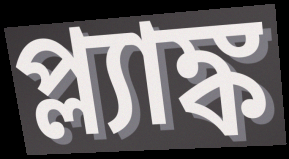
প্ল্যাঙ্ক